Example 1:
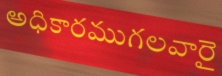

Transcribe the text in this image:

అధికారముగలవారై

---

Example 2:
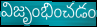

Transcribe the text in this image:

విజృంభించడం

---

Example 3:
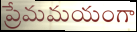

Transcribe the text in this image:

ప్రేమమయంగా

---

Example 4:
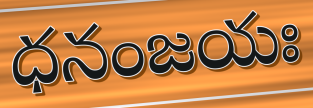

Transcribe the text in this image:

ధనంజయః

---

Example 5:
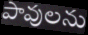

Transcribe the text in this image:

పావులను